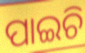
ପାଇଚି